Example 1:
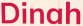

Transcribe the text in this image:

Dinah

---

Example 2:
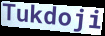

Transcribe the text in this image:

Tukdoji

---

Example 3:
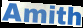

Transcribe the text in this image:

Amith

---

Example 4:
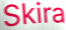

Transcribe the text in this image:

Skira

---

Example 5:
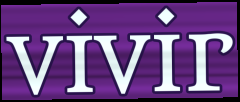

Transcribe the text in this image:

vivir